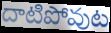
దాటిపోవుట